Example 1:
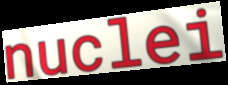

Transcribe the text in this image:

nuclei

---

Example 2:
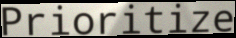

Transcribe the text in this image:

Prioritize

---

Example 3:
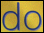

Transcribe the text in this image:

do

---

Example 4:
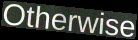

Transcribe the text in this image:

Otherwise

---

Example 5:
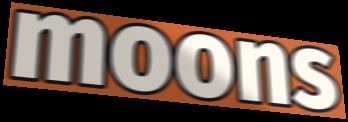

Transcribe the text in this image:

moons